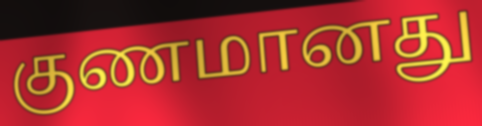
குணமானது